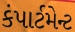
કંપાર્ટમેન્ટ